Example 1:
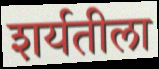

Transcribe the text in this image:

शर्यतीला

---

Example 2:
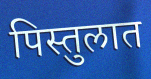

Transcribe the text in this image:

पिस्तुलात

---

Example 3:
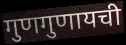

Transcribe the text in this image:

गुणगुणायची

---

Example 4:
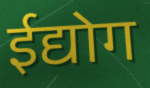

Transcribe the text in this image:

ईद्योग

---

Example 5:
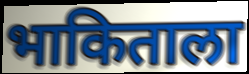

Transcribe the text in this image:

भाकिताला